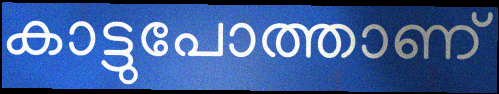
കാട്ടുപോത്താണ്